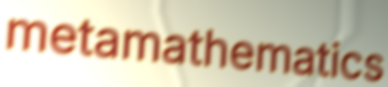
metamathematics